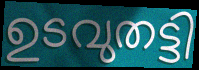
ഉടവുതട്ടി